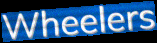
Wheelers